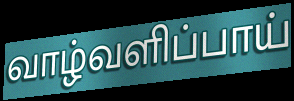
வாழ்வளிப்பாய்